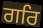
ਗਰਿ